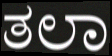
ತಲಾ